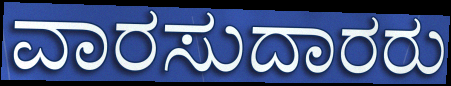
ವಾರಸುದಾರರು